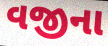
વજીના